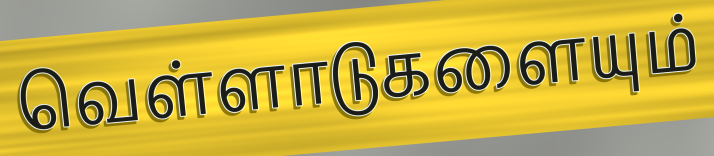
வெள்ளாடுகளையும்